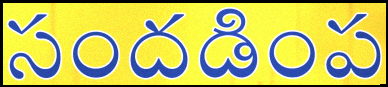
సందడింప